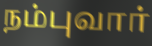
நம்புவார்